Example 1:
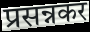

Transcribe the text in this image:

प्रसन्नकर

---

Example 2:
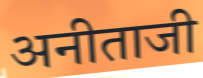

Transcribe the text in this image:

अनीताजी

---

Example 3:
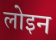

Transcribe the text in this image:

लोइन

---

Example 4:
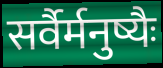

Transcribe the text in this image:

सर्वैर्मनुष्यैः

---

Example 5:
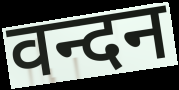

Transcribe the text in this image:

वन्दन